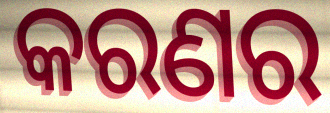
କରଣର